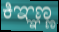
ಕಿಞ್ಞಣ್ಣ